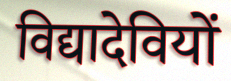
विद्यादेवियों